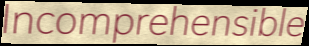
Incomprehensible